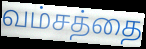
வம்சத்தை